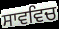
ਸਾਵਵਿਚ